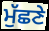
ਮੁੱਛਣੇ